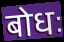
बोधः